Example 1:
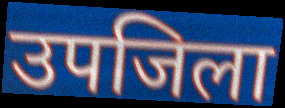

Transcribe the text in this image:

उपजिला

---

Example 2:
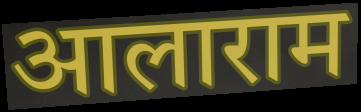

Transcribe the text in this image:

आलाराम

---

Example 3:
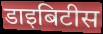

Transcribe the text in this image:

डाइबिटीस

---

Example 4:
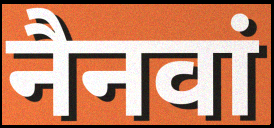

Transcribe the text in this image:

नैनवां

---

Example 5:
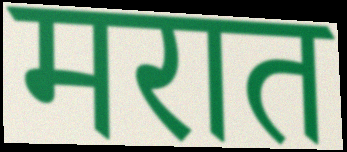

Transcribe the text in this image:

मरात